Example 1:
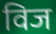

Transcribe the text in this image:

विज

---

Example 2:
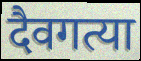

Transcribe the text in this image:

दैवगत्या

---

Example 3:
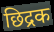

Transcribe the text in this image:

छिद्रक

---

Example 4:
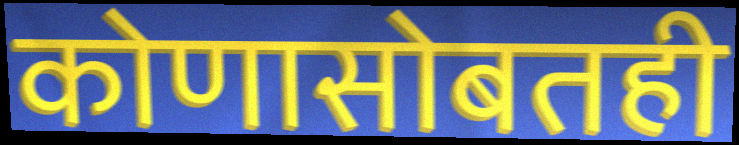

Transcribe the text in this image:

कोणासोबतही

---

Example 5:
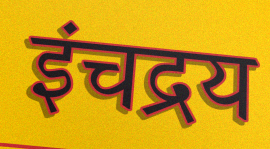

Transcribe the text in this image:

इंचद्रय